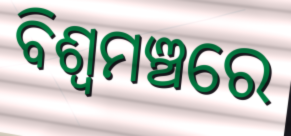
ବିଶ୍ୱମଞ୍ଚରେ